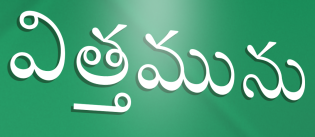
విత్తమును